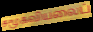
சமூகவியலைப்